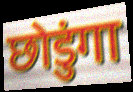
छोडुंगा